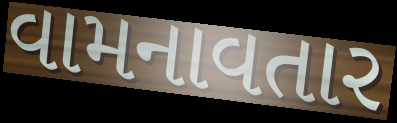
વામનાવતાર